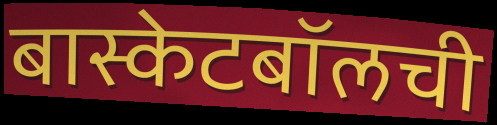
बास्केटबॉलची